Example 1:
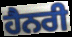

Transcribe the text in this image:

ਹੈਨਰੀ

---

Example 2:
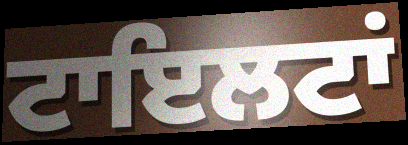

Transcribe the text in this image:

ਟਾਇਲਟਾਂ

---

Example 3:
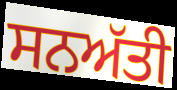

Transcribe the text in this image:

ਸਨਅੱਤੀ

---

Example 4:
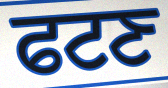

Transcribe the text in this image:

ਫਟਣ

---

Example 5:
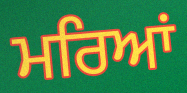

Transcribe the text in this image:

ਮਰਿਆਂ